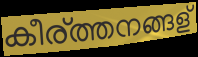
കീര്ത്തനങ്ങള്